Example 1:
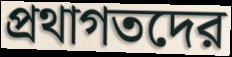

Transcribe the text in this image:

প্রথাগতদের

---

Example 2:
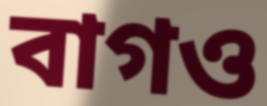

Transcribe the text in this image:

বাগও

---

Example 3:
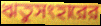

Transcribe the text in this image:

ঋতুসংহারের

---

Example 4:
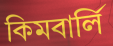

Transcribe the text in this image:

কিমবার্লি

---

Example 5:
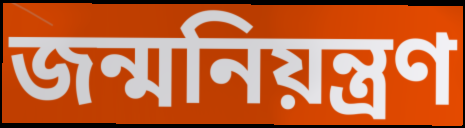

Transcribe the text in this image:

জন্মনিয়ন্ত্রণ